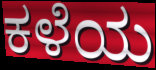
ಕಳೆಯ